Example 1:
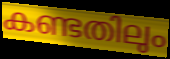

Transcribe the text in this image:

കണ്ടതിലും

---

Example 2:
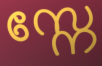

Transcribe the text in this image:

സ്നേ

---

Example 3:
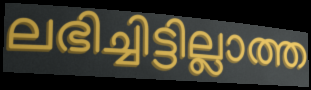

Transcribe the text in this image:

ലഭിച്ചിട്ടില്ലാത്ത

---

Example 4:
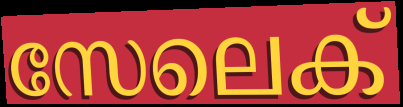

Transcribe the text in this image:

സേലെക്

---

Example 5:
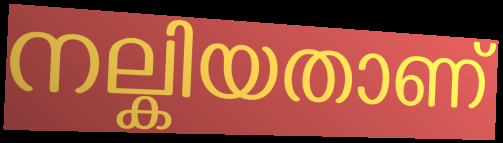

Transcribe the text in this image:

നല്കിയതാണ്